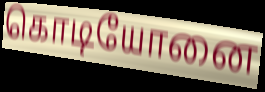
கொடியோனை